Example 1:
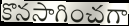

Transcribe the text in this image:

కొనసాగించగా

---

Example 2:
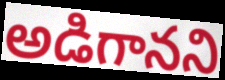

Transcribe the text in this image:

అడిగానని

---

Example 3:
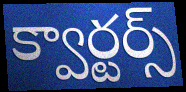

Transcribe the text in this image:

క్వార్టర్స్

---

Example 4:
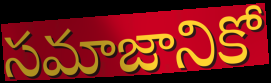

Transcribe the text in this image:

సమాజానికో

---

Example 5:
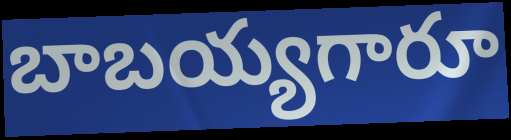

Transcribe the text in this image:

బాబయ్యగారూ